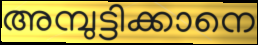
അമ്പുട്ടിക്കാനെ